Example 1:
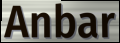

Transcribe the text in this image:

Anbar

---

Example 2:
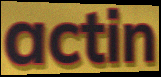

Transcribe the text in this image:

actin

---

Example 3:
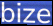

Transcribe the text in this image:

bize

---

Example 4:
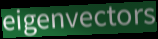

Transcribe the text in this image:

eigenvectors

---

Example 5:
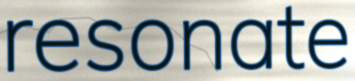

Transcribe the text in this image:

resonate